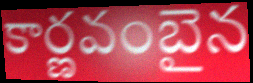
కార్ణవంబైన